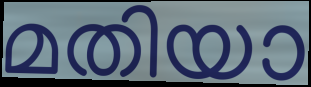
മതിയാ